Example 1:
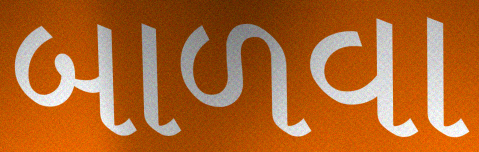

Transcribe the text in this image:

બાળવા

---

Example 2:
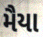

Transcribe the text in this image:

મૈયા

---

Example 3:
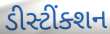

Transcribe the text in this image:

ડીસ્ટીંક્શન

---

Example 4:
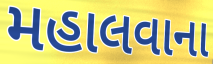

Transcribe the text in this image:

મહાલવાના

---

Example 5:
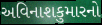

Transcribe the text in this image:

અવિનાશકુમારનો